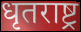
धृतराष्ट्र